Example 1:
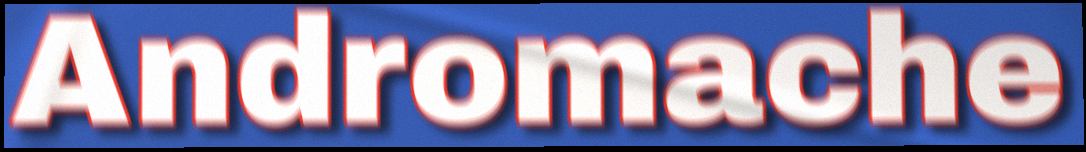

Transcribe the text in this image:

Andromache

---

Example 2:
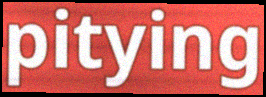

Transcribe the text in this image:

pitying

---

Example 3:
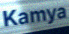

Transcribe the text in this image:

Kamya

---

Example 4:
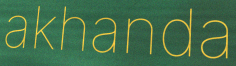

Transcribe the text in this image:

akhanda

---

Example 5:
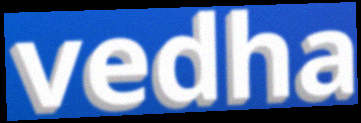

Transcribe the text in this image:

vedha